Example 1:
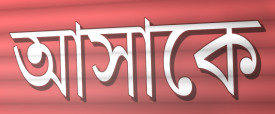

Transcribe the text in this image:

আসাকে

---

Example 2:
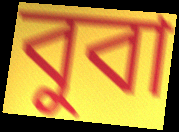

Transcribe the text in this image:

বুবা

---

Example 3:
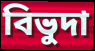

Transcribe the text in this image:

বিভুদা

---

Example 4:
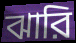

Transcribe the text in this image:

ঝারি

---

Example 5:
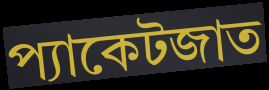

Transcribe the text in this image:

প্যাকেটজাত